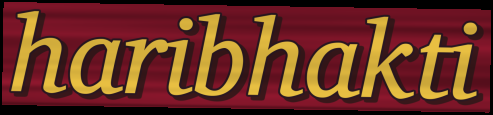
haribhakti